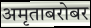
अमृताबरोबर